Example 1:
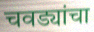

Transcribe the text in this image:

चवड्यांचा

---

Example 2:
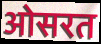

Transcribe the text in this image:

ओसरत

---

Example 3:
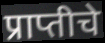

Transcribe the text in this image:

प्राप्तीचे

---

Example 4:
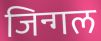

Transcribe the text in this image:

जिन्गल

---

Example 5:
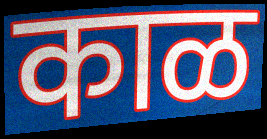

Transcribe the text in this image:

काळ